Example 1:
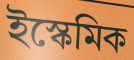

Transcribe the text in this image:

ইস্কেমিক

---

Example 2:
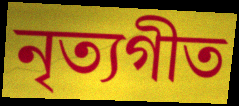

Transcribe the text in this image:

নৃত্যগীত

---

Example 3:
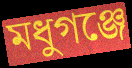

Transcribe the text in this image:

মধুগঞ্জে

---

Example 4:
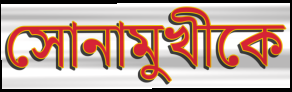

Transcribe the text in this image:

সোনামুখীকে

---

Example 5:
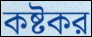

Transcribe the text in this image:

কষ্টকর